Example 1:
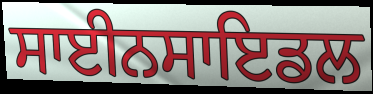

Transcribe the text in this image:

ਸਾਈਨਸਾਇਡਲ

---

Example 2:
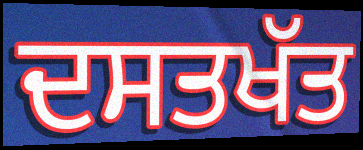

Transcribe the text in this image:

ਦਸਤਖੱਤ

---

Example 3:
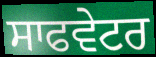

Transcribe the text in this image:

ਸਾਫਵੇਟਰ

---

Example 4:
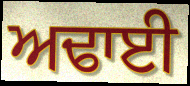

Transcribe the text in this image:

ਅਢਾਈ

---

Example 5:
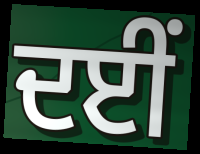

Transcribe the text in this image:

ਦਈਂ